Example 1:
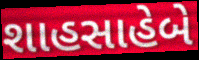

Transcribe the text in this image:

શાહસાહેબે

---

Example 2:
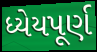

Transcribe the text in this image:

ધ્યેયપૂર્ણ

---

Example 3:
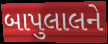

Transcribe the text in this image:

બાપુલાલને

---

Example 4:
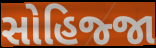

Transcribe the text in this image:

સોહિજ્જા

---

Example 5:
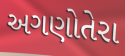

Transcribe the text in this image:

અગણોતેરા